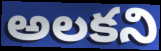
అలకని